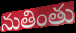
నుతింతు